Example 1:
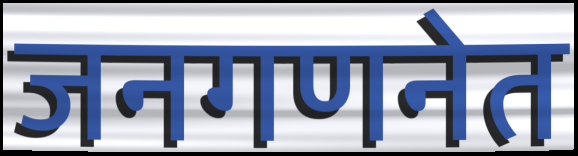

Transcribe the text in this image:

जनगणनेत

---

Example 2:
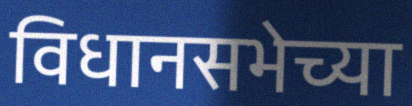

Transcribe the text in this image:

विधानसभेच्या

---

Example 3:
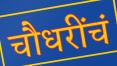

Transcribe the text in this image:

चौधरींचं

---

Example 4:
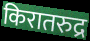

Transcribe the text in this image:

किरातरुद्र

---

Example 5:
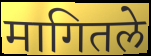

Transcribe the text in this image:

मागितले